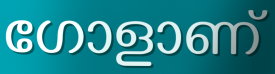
ഗോളാണ്